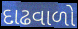
દાઢવાળો